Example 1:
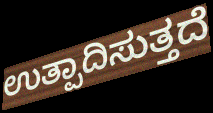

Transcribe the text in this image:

ಉತ್ಪಾದಿಸುತ್ತದೆ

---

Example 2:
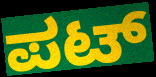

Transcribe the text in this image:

ಪಟ್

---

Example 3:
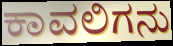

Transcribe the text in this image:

ಕಾವಲಿಗನು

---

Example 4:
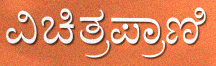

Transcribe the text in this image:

ವಿಚಿತ್ರಪ್ರಾಣಿ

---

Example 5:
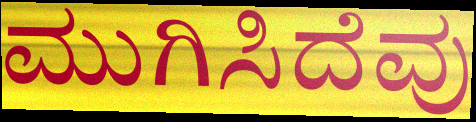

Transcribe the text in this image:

ಮುಗಿಸಿದೆವು